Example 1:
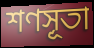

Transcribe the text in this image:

শণসূতা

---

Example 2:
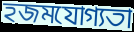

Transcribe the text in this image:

হজমযোগ্যতা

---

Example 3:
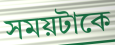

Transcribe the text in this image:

সময়টাকে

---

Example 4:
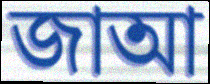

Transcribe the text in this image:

জাআ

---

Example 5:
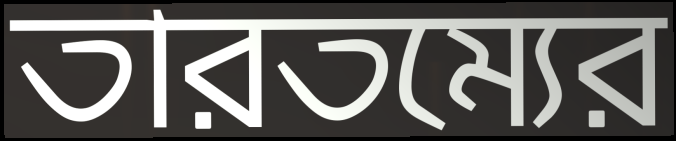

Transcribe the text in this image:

তারতম্যের